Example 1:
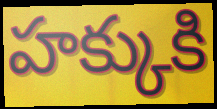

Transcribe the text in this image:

హక్కుకి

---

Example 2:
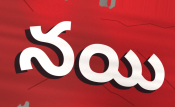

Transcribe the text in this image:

నయి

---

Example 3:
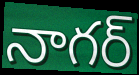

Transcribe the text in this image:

నాగర్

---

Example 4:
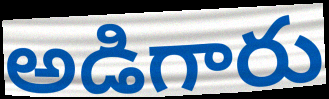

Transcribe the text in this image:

అడిగారు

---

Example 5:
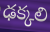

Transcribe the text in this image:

ఢక్కలి